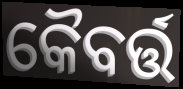
କୈବର୍ତ୍ତ